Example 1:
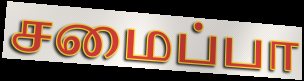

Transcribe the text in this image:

சமைப்பா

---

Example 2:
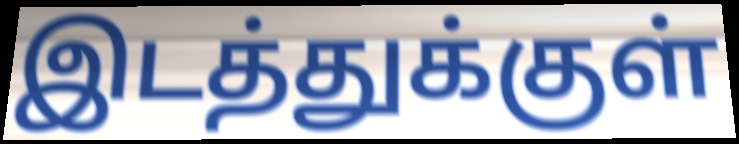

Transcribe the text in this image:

இடத்துக்குள்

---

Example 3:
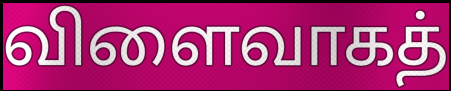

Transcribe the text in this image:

விளைவாகத்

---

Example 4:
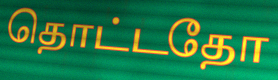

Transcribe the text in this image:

தொட்டதோ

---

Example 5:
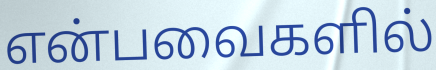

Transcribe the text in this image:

என்பவைகளில்